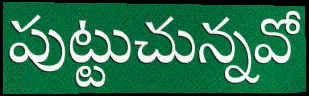
పుట్టుచున్నవో